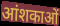
आंशकाओं